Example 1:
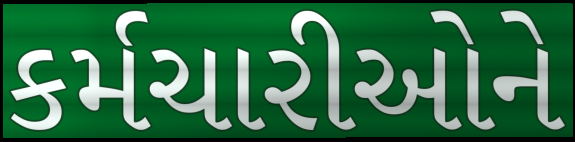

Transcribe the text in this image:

કર્મચારીઓને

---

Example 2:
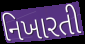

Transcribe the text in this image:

નિખારતી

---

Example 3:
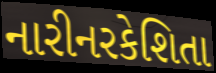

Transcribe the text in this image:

નારીનરકેશિતા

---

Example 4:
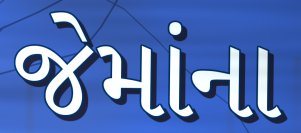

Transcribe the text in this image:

જેમાંના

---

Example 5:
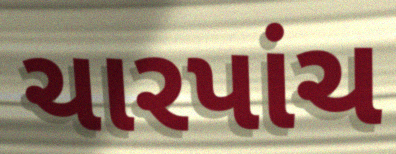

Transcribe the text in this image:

ચારપાંચ